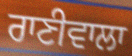
ਰਾਣੀਵਾਲਾ